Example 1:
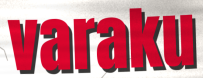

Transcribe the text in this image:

varaku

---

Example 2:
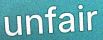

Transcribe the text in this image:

unfair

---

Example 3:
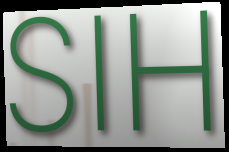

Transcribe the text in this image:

SIH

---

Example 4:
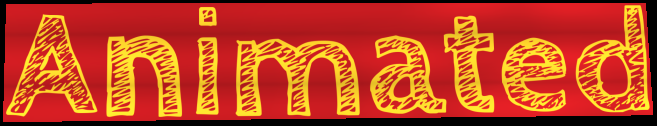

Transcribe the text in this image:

Animated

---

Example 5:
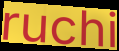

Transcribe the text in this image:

ruchi